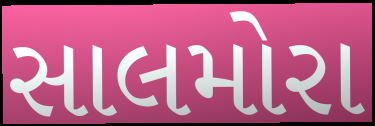
સાલમોરા